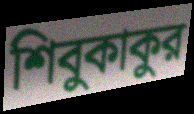
শিবুকাকুর